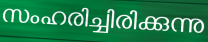
സംഹരിച്ചിരിക്കുന്നു